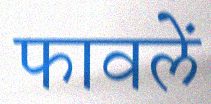
फावलें